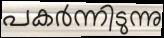
പകർന്നിടുന്നു